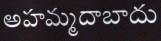
అహమ్మదాబాదు